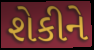
શેકીને